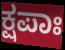
ಕ್ಷಪಾಃ